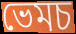
ভেমচ